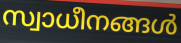
സ്വാധീനങ്ങൾ